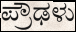
ಪ್ರೌಢಳು